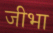
जीभा